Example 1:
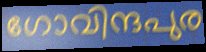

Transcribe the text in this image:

ഗോവിന്ദപുര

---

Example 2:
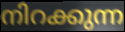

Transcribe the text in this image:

നിറക്കുന്ന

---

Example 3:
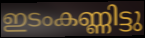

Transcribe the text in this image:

ഇടംകണ്ണിട്ടു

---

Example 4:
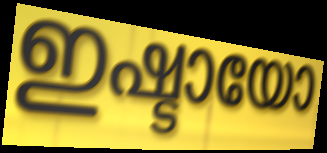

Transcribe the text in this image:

ഇഷ്ടായോ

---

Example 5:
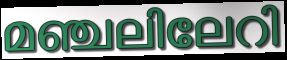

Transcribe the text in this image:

മഞ്ചലിലേറി